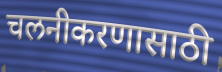
चलनीकरणासाठी